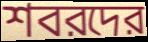
শবরদের